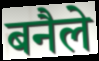
बनैले